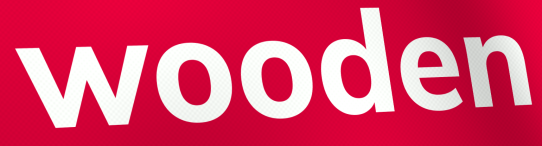
wooden